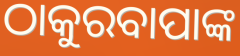
ଠାକୁରବାପାଙ୍କ